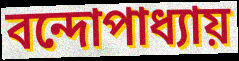
বন্দোপাধ্যায়